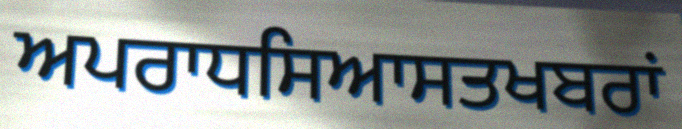
ਅਪਰਾਧਸਿਆਸਤਖਬਰਾਂ